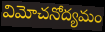
విమోచనోద్యమం